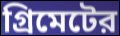
গ্রিমেটের